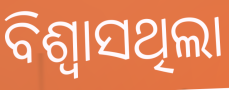
ବିଶ୍ୱାସଥିଲା